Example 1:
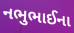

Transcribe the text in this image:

નભુભાઈના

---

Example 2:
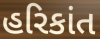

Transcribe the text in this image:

હરિકાંત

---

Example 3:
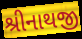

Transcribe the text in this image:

શ્રીનાથજી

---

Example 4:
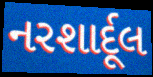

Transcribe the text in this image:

નરશાર્દૂલ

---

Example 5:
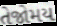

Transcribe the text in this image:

તેજોમય